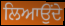
ਲਿਆਉੁਂਦੇ